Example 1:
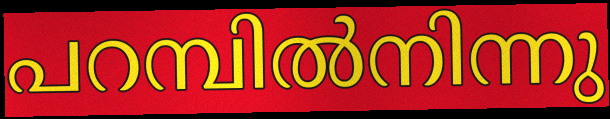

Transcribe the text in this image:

പറമ്പിൽനിന്നു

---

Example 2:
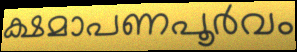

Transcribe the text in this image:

ക്ഷമാപണപൂർവം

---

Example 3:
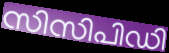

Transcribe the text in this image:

സിസിപിഡി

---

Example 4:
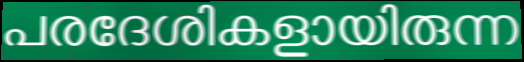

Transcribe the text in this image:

പരദേശികളായിരുന്ന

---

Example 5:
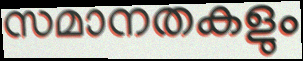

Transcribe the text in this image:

സമാനതകളും